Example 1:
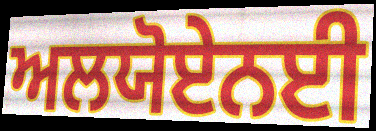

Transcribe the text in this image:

ਅਲਯੋਏਨਈ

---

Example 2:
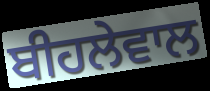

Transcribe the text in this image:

ਬੀਹਲੇਵਾਲ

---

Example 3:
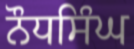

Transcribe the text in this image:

ਨੌਧਸਿੰਘ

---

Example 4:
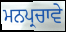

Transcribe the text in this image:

ਮਨਪ੍ਰਚਾਵੇ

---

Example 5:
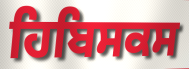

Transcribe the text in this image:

ਹਿਬਿਸਕਸ